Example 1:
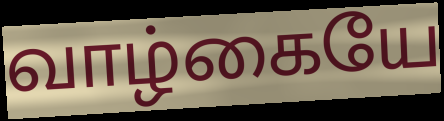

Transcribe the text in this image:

வாழ்கையே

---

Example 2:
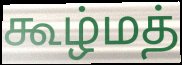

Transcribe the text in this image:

கூழ்மத்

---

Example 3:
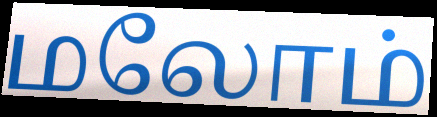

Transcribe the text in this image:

மலோம்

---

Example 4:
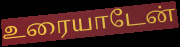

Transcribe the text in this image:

உரையாடேன்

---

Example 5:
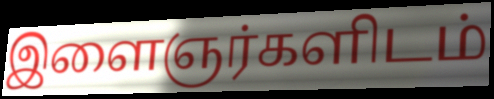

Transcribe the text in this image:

இளைஞர்களிடம்